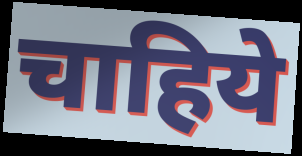
चाहिये